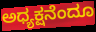
ಅಧ್ಯಕ್ಷನೆಂದೂ